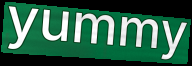
yummy